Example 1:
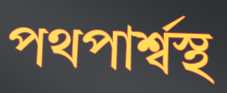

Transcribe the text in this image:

পথপার্শ্বস্থ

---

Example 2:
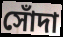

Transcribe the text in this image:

সোঁদা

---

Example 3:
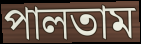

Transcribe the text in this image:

পালতাম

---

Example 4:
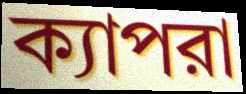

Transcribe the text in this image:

ক্যাপরা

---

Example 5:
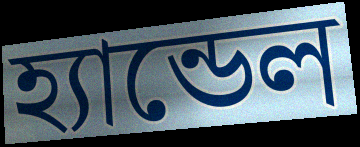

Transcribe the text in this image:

হ্যান্ডেল